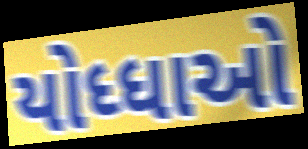
યોધ્ધાઓ